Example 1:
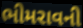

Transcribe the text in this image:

ભીમરાવની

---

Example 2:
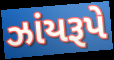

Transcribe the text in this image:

ઝાંયરૂપે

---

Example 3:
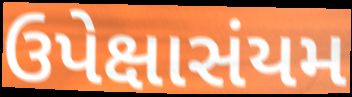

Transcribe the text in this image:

ઉપેક્ષાસંયમ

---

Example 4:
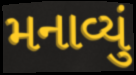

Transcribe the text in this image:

મનાવ્યું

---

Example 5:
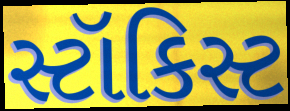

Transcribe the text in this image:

સ્ટૉકિસ્ટ